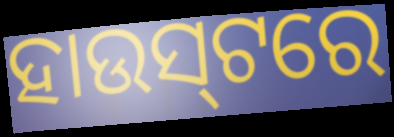
ହାଉସ୍‌ଟରେ